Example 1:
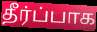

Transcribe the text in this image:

தீர்ப்பாக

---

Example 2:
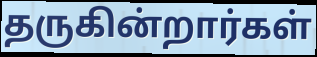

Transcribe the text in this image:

தருகின்றார்கள்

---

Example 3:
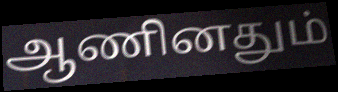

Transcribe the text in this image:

ஆணினதும்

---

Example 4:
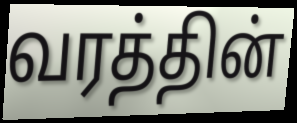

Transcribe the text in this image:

வரத்தின்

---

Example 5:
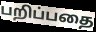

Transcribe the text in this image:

பறிப்பதை